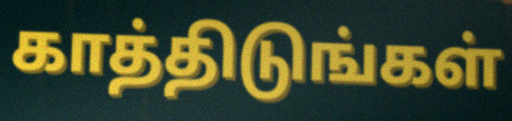
காத்திடுங்கள்